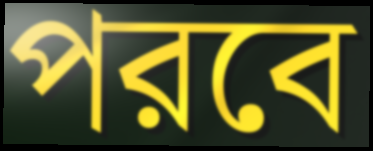
পরবে